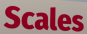
Scales